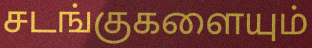
சடங்குகளையும்